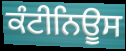
ਕੰਟੀਨਿਊਸ